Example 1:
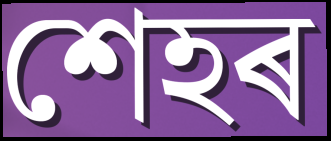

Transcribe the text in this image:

শেহৰ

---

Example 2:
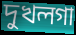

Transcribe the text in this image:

দুখলগা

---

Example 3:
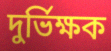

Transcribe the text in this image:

দুৰ্ভিক্ষক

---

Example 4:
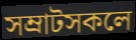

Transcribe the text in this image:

সম্ৰাটসকলে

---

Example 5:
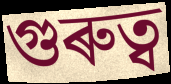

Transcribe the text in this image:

গুৰুত্ব